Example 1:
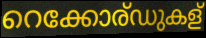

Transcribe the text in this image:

റെക്കോര്ഡുകള്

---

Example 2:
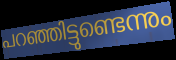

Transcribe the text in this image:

പറഞ്ഞിട്ടുണ്ടെന്നും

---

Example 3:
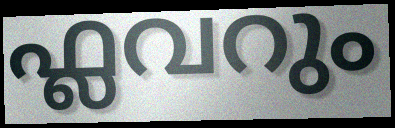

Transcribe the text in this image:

ഫ്ലവറും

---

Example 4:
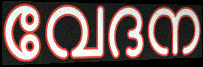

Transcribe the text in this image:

വേദന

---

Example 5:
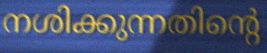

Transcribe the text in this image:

നശിക്കുന്നതിന്റെ